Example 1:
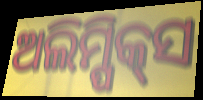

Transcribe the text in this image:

ଅଲିମ୍ପିକ୍‌ସ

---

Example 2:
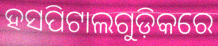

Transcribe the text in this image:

ହସପିଟାଲଗୁଡ଼ିକରେ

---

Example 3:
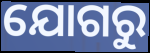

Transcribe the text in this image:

ଯୋଗରୁ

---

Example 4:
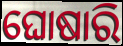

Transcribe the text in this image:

ଘୋଷାରି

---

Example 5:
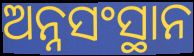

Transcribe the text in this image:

ଅନ୍ନସଂସ୍ଥାନ